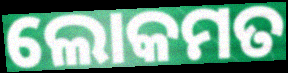
ଲୋକମତ